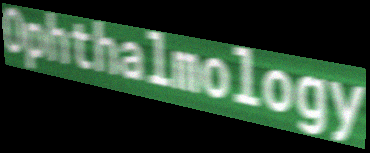
Ophthalmology